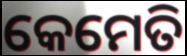
କେମେତି